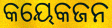
କୟେକଜନ